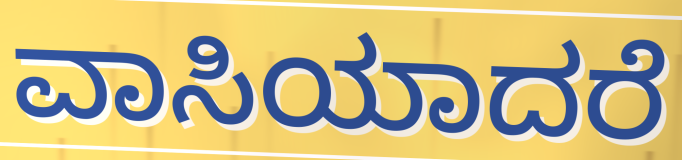
ವಾಸಿಯಾದರೆ